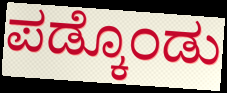
ಪಡ್ಕೊಂಡು